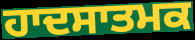
ਹਾਦਸਾਤਮਕ